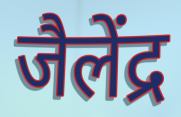
जैलेंद्र